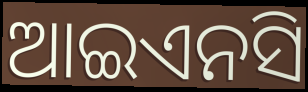
ଆଇଏନସି